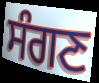
ਸੰਗਣ